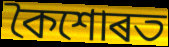
কৈশোৰত